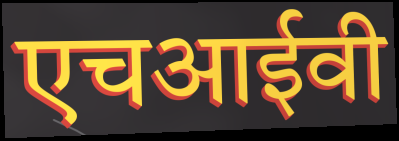
एचआईवी